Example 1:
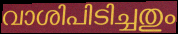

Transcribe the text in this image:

വാശിപിടിച്ചതും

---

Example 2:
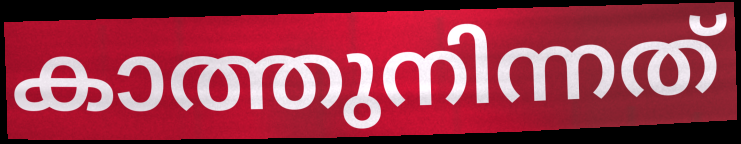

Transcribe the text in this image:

കാത്തുനിന്നത്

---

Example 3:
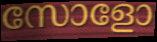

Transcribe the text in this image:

സോളോ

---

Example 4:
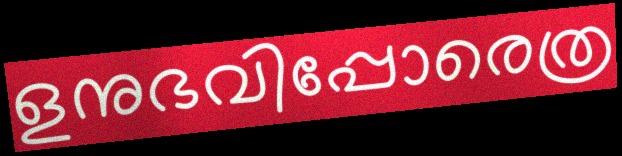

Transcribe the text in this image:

ളനുഭവിപ്പോരെത്ര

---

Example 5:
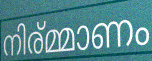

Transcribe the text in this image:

നിര്മ്മാണം